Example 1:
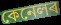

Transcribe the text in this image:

কেনেলৰ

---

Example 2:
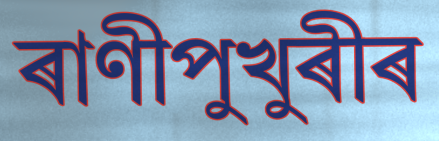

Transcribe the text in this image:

ৰাণীপুখুৰীৰ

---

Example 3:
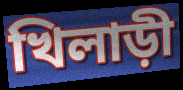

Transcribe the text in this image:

খিলাড়ী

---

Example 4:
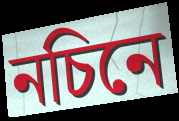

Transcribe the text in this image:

নচিনে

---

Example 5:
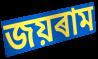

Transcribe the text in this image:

জয়ৰাম